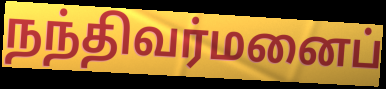
நந்திவர்மனைப்